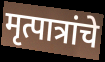
मृत्पात्रांचे